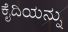
ಕೈದಿಯನ್ನು